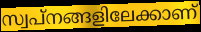
സ്വപ്നങ്ങളിലേക്കാണ്